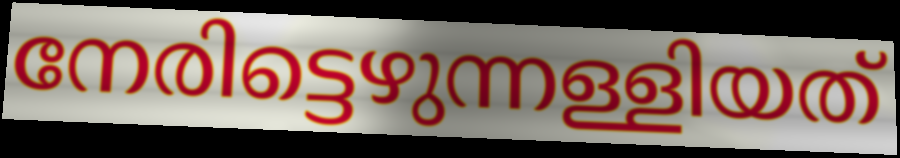
നേരിട്ടെഴുന്നള്ളിയത്